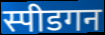
स्पीडगन